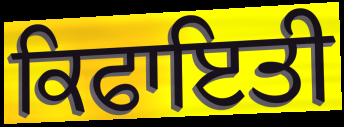
ਕਿਫਾਇਤੀ